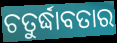
ଚତୁର୍ଦ୍ଧାବତାର